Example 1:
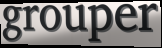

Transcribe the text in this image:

grouper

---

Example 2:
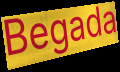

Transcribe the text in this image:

Begada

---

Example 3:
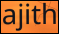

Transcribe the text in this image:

ajith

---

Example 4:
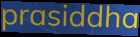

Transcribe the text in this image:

prasiddha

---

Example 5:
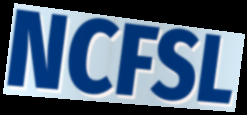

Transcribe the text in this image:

NCFSL